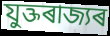
যুক্তৰাজ্যৰ